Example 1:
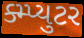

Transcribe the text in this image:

ક્મ્પ્યુટર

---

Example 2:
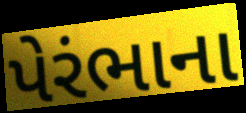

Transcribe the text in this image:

પેરંભાના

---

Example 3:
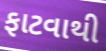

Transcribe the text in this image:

ફાટવાથી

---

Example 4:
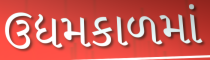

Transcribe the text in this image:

ઉદ્યમકાળમાં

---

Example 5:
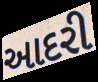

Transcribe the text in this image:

આદરી